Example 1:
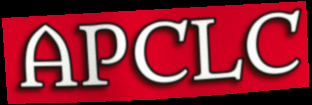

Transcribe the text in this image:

APCLC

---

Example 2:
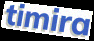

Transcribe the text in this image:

timira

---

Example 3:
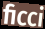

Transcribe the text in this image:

ficci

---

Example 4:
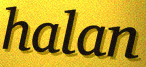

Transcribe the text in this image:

halan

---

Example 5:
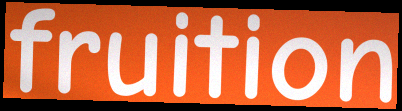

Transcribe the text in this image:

fruition